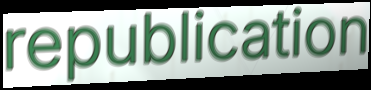
republication